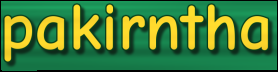
pakirntha